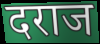
दराज